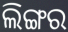
ଲିଙ୍ଗର